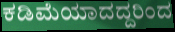
ಕಡಿಮೆಯಾದದ್ದರಿಂದ